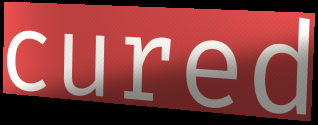
cured